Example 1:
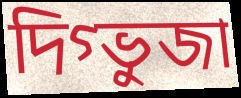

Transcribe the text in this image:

দিগ্ভুজা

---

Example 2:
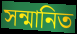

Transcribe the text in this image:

সন্মানিত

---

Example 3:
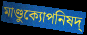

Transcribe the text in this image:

মাণ্ডুক্যোপনিষদ্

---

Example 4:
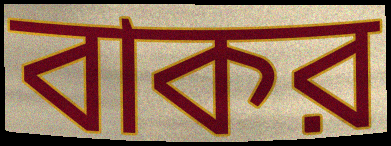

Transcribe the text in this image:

বাকর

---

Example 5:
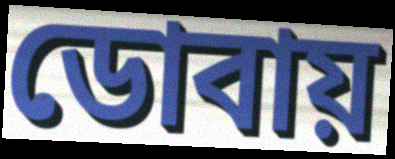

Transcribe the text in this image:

ডোবায়